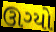
ઊગ્યો